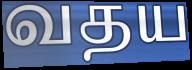
வதய